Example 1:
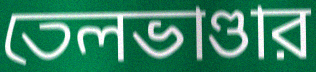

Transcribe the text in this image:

তেলভাণ্ডার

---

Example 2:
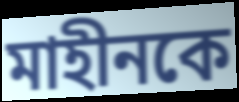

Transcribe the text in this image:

মাহীনকে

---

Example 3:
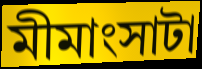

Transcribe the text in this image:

মীমাংসাটা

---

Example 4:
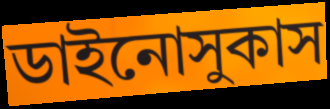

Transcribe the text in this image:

ডাইনোসুকাস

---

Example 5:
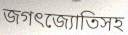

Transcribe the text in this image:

জগৎজ্যোতিসহ